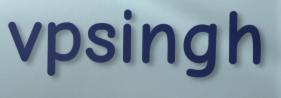
vpsingh